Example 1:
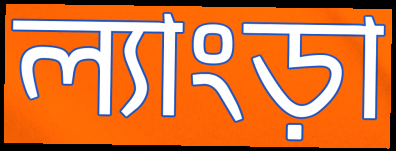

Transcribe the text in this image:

ল্যাংড়া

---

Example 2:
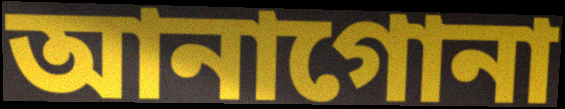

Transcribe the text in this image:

আনাগোনা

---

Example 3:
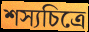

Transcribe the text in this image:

শস্যচিত্রে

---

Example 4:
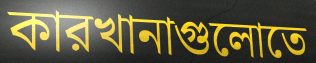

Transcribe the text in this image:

কারখানাগুলোতে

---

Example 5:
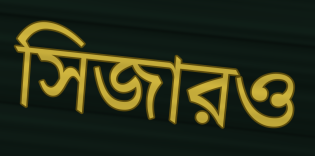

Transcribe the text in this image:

সিজারও